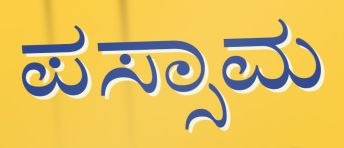
ಪಸ್ಸಾಮ